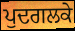
ਪੁਦਗਲਕੇ